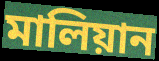
মালিয়ান